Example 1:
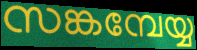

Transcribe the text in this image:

സങ്കമ്പേയ്യ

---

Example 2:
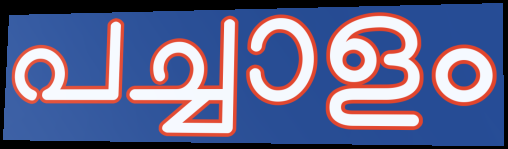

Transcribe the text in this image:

പച്ചാളം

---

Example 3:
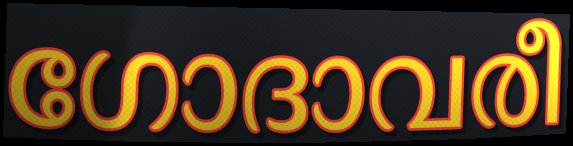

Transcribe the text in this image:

ഗോദാവരീ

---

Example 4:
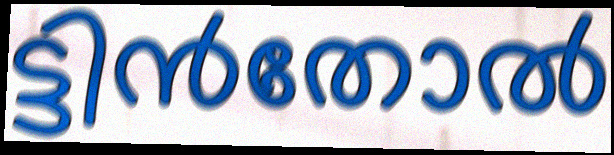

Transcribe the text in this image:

ട്ടിൻതോൽ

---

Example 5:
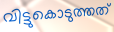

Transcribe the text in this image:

വിട്ടുകൊടുത്തത്